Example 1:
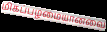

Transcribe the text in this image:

மிகப்பழமையானவை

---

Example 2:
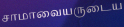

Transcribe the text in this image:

சாமாவையருடைய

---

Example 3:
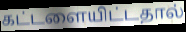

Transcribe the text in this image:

கட்டளையிட்டதால்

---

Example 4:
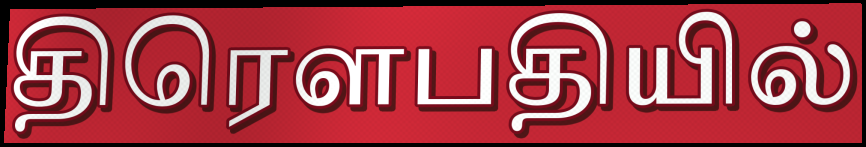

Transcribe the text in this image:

திரௌபதியில்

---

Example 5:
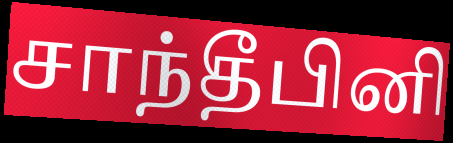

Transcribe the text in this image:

சாந்தீபினி